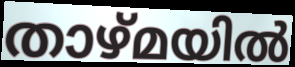
താഴ്മയിൽ